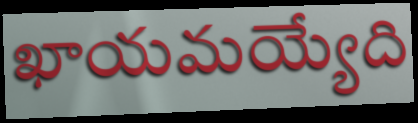
ఖాయమయ్యేది